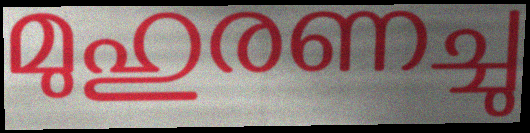
മുഹുരണച്ചു